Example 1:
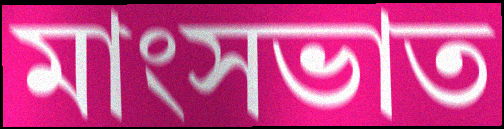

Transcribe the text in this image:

মাংসভাত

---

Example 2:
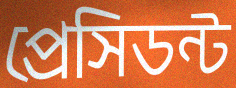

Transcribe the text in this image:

প্রেসিডন্ট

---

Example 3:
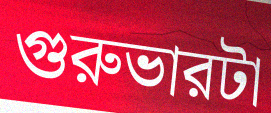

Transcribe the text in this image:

গুরুভারটা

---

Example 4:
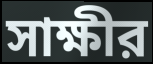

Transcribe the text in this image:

সাক্ষীর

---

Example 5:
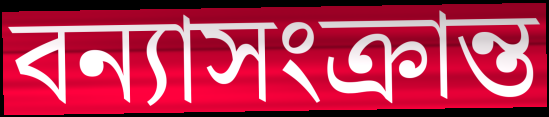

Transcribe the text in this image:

বন্যাসংক্রান্ত